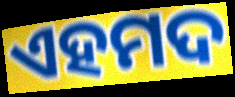
ଏହମଦ